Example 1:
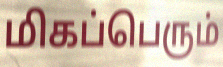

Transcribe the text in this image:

மிகப்பெரும்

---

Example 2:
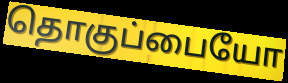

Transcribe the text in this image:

தொகுப்பையோ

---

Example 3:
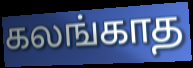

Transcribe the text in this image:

கலங்காத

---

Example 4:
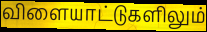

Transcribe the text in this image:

விளையாட்டுகளிலும்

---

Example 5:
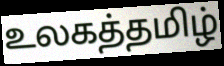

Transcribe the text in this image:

உலகத்தமிழ்